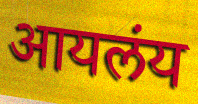
आयलंय